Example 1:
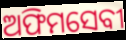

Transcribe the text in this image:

ଅଫିମସେବୀ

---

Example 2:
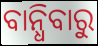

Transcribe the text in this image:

ବାନ୍ଧିବାରୁ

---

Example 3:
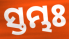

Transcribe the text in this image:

ସ୍ତମ୍ଭଃ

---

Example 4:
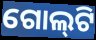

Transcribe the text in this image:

ଗୋଲ୍‍ଟି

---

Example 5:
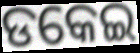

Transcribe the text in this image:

ଡକେଇ